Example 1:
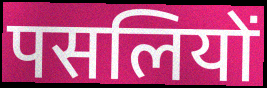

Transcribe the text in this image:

पसलियों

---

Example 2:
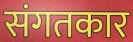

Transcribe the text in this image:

संगतकार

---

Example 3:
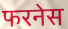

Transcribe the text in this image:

फरनेस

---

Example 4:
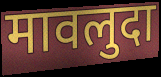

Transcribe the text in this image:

मावलुदा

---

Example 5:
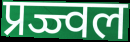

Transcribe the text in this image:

प्रज्ज्वल